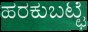
ಹರಕುಬಟ್ಟೆ